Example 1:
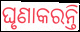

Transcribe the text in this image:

ଘୃଣାକରନ୍ତି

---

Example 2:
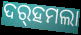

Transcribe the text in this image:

ଦର୍‌ହମଲା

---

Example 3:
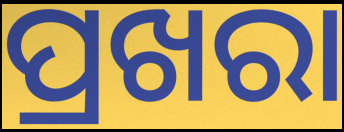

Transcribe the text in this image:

ପ୍ରଖରା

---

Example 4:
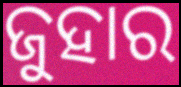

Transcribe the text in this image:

ଜୁହାର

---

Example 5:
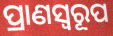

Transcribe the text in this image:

ପ୍ରାଣସ୍ୱରୂପ